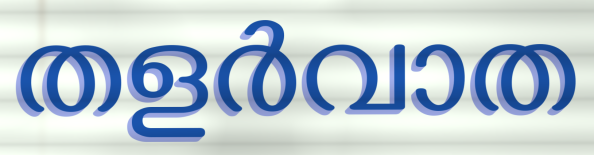
തളർവാത